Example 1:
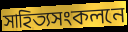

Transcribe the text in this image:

সাহিত্যসংকলনে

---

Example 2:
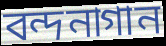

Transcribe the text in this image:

বন্দনাগান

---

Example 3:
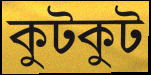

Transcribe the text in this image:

কুটকুট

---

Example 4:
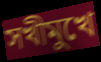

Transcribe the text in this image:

সখীমুখে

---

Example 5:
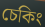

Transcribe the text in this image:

চেকিং